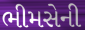
ભીમસેની